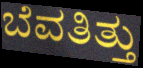
ಬೆವತಿತ್ತು